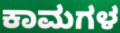
ಕಾಮಗಳ